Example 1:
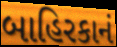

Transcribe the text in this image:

બાહિરકાનં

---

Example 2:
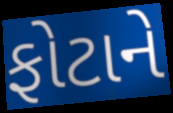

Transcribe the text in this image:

ફોટાને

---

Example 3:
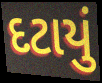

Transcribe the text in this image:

દટાયું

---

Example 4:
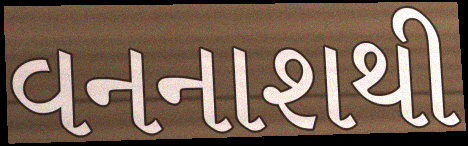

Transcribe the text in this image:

વનનાશથી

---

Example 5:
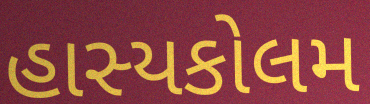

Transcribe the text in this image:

હાસ્યકોલમ